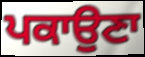
ਪਕਾਉਣਾ